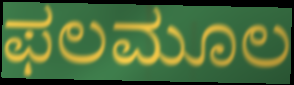
ಫಲಮೂಲ